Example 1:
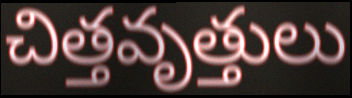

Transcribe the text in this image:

చిత్తవృత్తులు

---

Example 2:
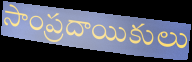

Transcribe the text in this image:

సాంప్రదాయికులు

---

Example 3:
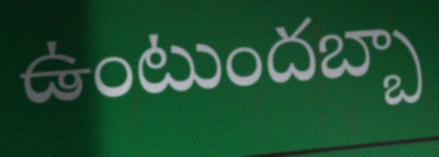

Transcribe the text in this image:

ఉంటుందబ్బా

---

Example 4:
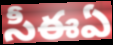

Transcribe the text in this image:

సీఈఏ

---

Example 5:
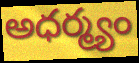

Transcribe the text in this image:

అధర్మ్యం